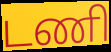
டணி